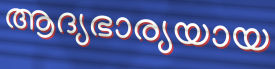
ആദ്യഭാര്യയായ